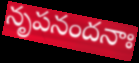
నృపనందనాః